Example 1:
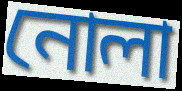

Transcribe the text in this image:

নোলা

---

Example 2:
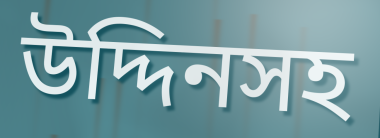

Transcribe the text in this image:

উদ্দিনসহ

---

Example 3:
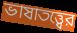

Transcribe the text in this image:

ভাষাতত্ত্বের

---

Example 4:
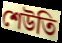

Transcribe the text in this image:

শেউতি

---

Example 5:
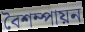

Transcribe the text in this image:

বৈশম্পায়ন